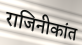
राजिनीकांत